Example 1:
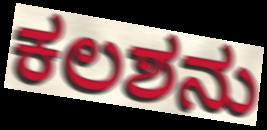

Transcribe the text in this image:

ಕಲಶನು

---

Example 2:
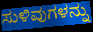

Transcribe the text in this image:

ಸುಳಿವುಗಳನ್ನು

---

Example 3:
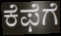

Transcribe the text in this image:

ಕೆಫೆಗೆ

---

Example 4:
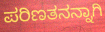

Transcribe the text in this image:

ಪರಿಣತನನ್ನಾಗಿ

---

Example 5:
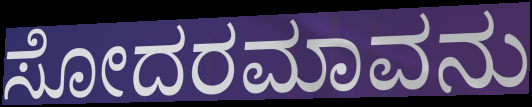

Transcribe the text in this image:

ಸೋದರಮಾವನು